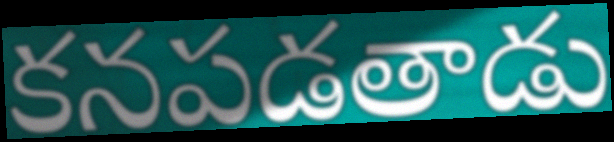
కనపడతాడు